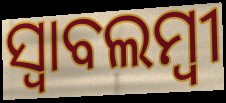
ସ୍ଵାବଲମ୍ଵୀ